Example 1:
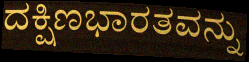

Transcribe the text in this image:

ದಕ್ಷಿಣಭಾರತವನ್ನು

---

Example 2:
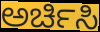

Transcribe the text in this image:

ಅರ್ಚಿಸಿ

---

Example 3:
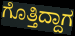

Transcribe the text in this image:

ಗೊತ್ತಿದ್ದಾಗ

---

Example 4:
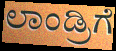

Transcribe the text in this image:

ಲಾಂಡ್ರಿಗೆ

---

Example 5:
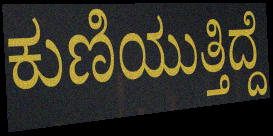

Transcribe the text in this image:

ಕುಣಿಯುತ್ತಿದ್ದೆ